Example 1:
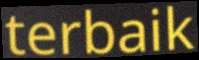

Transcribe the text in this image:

terbaik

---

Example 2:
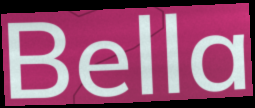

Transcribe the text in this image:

Bella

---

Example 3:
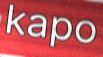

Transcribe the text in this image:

kapo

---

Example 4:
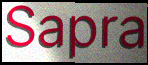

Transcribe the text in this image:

Sapra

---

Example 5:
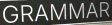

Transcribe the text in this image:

GRAMMAR